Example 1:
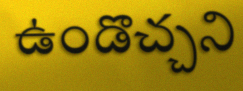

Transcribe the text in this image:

ఉండొచ్చని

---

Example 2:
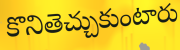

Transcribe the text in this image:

కొనితెచ్చుకుంటారు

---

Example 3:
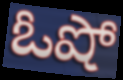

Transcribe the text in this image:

ఓషో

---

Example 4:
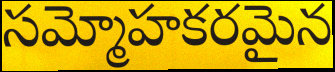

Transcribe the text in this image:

సమ్మోహకరమైన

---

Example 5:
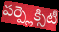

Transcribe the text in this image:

పర్ప్లెక్సిటీ